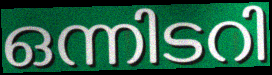
ഒന്നിടറി